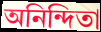
অনিন্দিতা